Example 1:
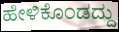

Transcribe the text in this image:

ಹೇಳಿಕೊಂಡದ್ದು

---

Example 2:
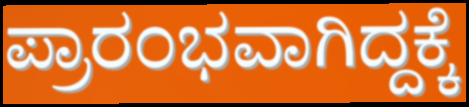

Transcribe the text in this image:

ಪ್ರಾರಂಭವಾಗಿದ್ದಕ್ಕೆ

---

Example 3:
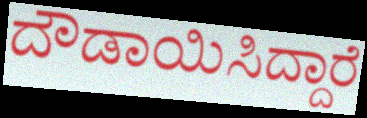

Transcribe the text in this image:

ದೌಡಾಯಿಸಿದ್ದಾರೆ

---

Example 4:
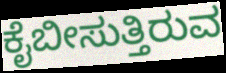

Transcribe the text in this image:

ಕೈಬೀಸುತ್ತಿರುವ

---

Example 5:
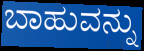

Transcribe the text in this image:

ಬಾಹುವನ್ನು